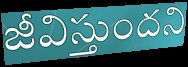
జీవిస్తుందని